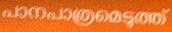
പാനപാത്രമെടുത്ത്